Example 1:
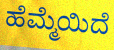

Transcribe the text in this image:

ಹೆಮ್ಮೆಯಿದೆ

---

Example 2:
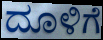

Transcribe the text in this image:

ದೂಳಿಗೆ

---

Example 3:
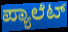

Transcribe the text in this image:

ಪ್ಯಾಲೆಟ್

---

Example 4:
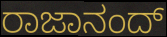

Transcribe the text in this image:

ರಾಜಾನಂದ್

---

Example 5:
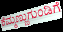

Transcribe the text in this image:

ಕೆಮ್ಮಣ್ಣುಗುಂಡಿಗೆ